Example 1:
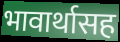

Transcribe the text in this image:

भावार्थासह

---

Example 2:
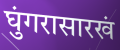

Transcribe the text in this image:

घुंगरासारखं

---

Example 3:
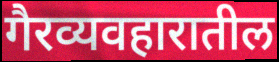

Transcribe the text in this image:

गैरव्यवहारातील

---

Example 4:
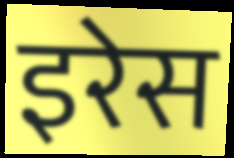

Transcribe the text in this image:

इरेस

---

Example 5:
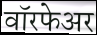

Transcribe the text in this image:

वॉरफेअर